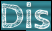
Dis